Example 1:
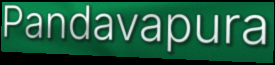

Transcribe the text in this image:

Pandavapura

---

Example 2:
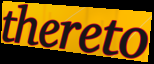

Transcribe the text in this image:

thereto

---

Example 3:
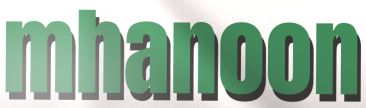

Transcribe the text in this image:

mhanoon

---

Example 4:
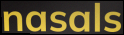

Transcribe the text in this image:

nasals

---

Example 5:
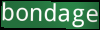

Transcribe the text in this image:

bondage